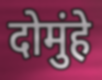
दोमुंहे